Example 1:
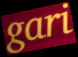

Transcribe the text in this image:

gari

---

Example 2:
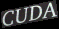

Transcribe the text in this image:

CUDA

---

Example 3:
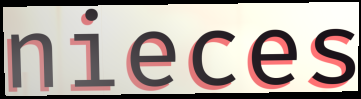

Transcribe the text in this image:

nieces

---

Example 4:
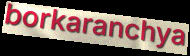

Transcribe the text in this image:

borkaranchya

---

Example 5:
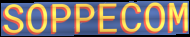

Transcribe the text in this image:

SOPPECOM